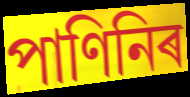
পাণিনিৰ